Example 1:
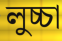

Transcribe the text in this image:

লুচ্চা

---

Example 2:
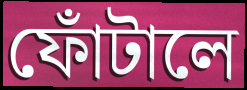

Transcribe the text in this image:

ফোঁটালে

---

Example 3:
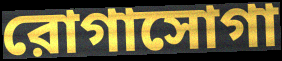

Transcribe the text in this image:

রোগাসোগা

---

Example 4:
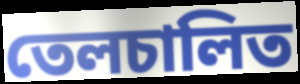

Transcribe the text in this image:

তেলচালিত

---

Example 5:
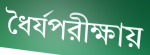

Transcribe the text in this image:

ধৈর্যপরীক্ষায়